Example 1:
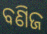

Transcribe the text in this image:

ବଣିଜ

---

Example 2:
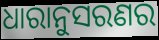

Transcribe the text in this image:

ଧାରାନୁସରଣର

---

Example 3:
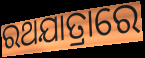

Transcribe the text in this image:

ରଥଯାତ୍ରାରେ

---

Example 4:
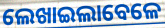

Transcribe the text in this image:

ଲେଖାଇଲାବେଳେ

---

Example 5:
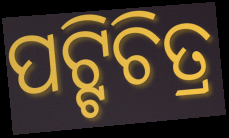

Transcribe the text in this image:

ପଟ୍ଟିଚିତ୍ର